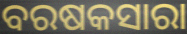
ବରଷକସାରା